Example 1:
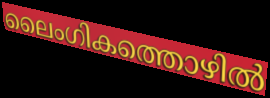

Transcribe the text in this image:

ലൈംഗികത്തൊഴിൽ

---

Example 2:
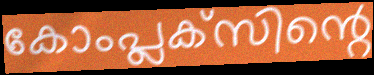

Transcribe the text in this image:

കോംപ്ലക്‌സിന്റെ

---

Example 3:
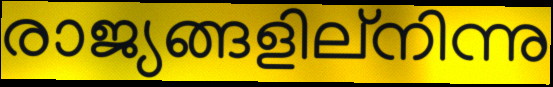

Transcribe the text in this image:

രാജ്യങ്ങളില്നിന്നു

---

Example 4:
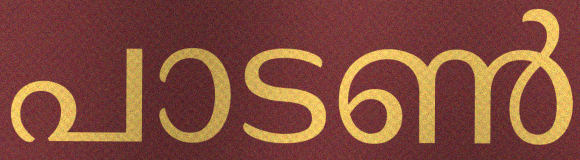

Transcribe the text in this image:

പാടൺ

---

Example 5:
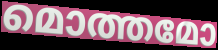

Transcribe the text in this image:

മൊത്തമോ